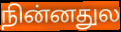
நின்னதுல